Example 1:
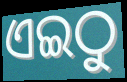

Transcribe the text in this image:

ଏଇଠୁ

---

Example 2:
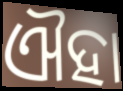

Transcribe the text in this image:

ଐହା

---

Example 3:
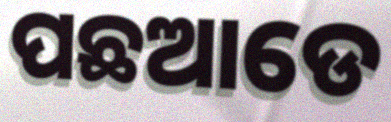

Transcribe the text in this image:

ପଛଆଡେ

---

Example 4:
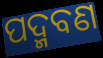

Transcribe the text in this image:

ପଦ୍ମବଣ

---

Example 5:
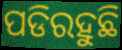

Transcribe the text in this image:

ପଡିରହୁଛି